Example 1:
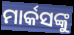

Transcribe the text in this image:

ମାର୍କସଙ୍କୁ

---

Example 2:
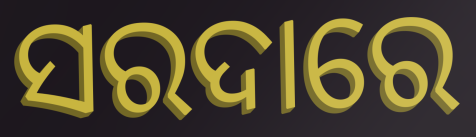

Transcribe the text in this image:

ସରଦାରେ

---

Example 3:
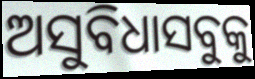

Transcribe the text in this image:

ଅସୁବିଧାସବୁକୁ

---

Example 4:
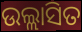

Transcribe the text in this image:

ଉଲ୍ଲାସିତ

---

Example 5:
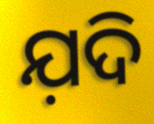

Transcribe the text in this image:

ଯ଼ଦି